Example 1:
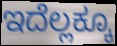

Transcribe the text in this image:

ಇದೆಲ್ಲಕ್ಕೂ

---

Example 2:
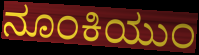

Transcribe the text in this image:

ನೂಂಕಿಯುಂ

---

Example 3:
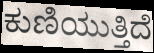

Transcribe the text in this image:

ಕುಣಿಯುತ್ತಿದೆ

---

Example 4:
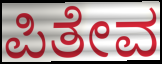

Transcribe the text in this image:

ಪಿತೇವ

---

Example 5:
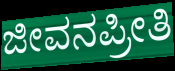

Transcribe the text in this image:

ಜೀವನಪ್ರೀತಿ